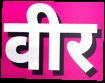
वीर